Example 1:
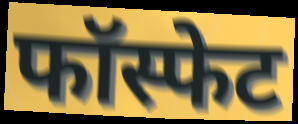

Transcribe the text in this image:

फॉस्फेट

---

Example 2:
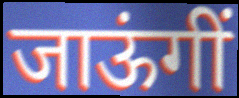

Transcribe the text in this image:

जाऊंगीं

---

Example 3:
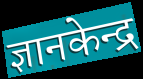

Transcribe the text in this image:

ज्ञानकेन्द्र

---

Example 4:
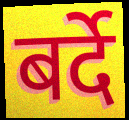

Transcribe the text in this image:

बर्दे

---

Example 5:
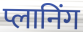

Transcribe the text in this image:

प्लानिंग